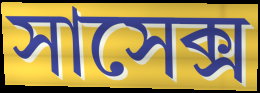
সাসেক্স